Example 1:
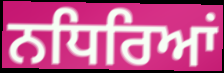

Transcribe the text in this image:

ਨਧਿਰਿਆਂ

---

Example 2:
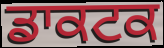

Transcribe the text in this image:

ਡਾਕਟਕ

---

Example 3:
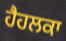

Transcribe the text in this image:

ਹੈਹਲਕਾ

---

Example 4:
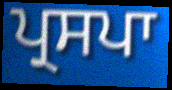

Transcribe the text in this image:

ਪ੍ਰਸਪਾ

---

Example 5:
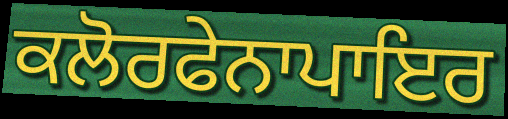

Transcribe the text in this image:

ਕਲੋਰਫੇਨਾਪਾਇਰ